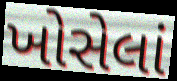
ખોસેલાં